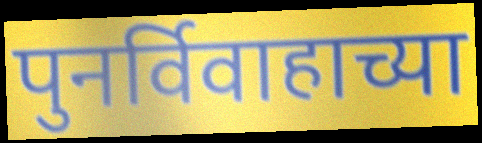
पुनर्विवाहाच्या